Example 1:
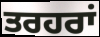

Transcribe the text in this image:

ਤਰਹਰਾਂ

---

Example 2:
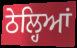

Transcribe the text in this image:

ਠੇਲ੍ਹਿਆਂ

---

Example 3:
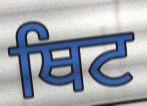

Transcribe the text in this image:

ਥਿਟ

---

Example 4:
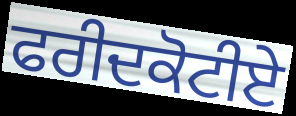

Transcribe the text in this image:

ਫਰੀਦਕੋਟੀਏ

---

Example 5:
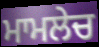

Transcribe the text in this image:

ਮਾਮਲੇਚ